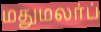
மதுமலர்ப்